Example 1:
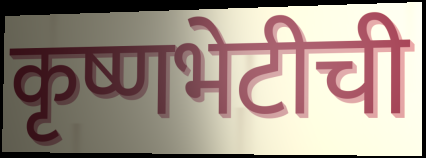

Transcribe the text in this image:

कृष्णभेटीची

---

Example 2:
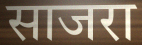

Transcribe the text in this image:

साजरा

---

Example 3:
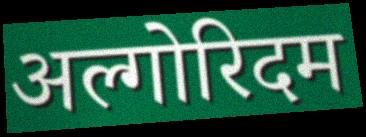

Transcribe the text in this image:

अल्गोरिदम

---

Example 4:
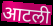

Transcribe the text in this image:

आटली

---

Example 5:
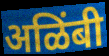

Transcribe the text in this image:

अळिंबी